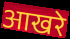
आखरे